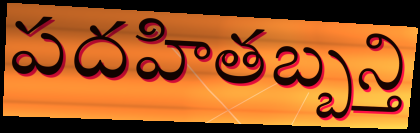
పదహితబ్బన్తి